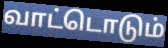
வாட்டொடும்